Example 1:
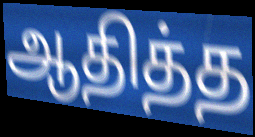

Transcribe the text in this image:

ஆதித்த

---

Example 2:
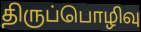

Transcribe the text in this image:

திருப்பொழிவு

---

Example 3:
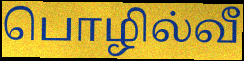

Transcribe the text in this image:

பொழில்வீ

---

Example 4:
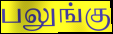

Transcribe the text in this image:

பலுங்கு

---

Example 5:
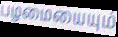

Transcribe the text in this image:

பழமையையும்